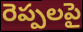
రెప్పలపై